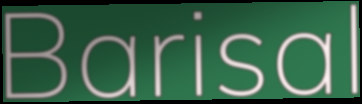
Barisal